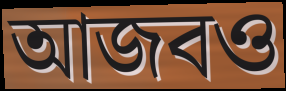
আজবও